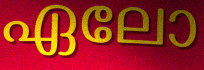
ഏലോ